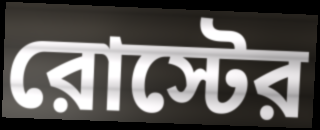
রোস্টের